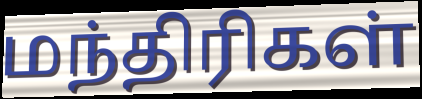
மந்திரிகள்